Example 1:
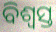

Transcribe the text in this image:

ବିଶ୍ଵସ୍ତ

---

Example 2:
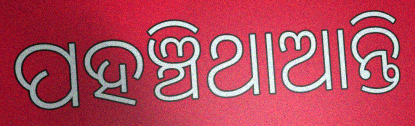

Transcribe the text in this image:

ପହଞ୍ଚିଥାଆନ୍ତି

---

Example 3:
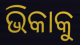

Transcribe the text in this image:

ଭିକାକୁ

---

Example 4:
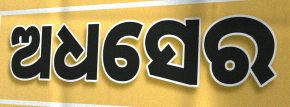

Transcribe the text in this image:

ଅଧସେର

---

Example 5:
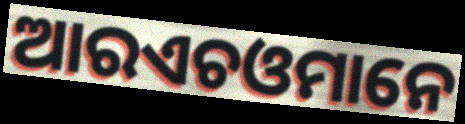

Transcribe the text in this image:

ଆରଏଚଓମାନେ